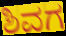
ಶಿವಗ